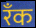
रँक